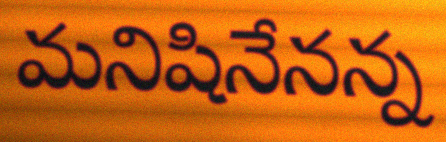
మనిషినేనన్న